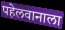
पहेलवानाला